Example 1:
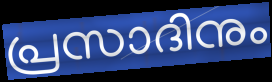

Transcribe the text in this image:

പ്രസാദിനും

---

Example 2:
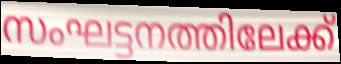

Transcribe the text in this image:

സംഘട്ടനത്തിലേക്ക്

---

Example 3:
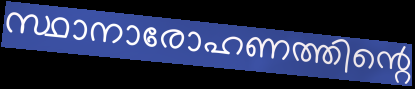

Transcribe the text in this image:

സ്ഥാനാരോഹണത്തിന്റെ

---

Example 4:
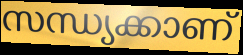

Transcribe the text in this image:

സന്ധ്യക്കാണ്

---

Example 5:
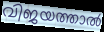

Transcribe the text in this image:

വിജയത്താൽ